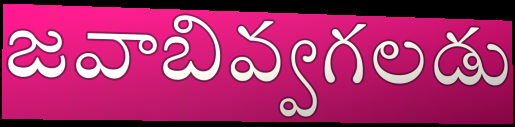
జవాబివ్వగలడు